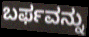
ಬರ್ಫವನ್ನು